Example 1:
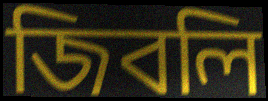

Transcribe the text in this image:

জিবলি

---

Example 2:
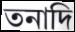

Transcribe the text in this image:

তনাদি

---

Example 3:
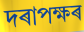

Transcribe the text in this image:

দৰাপক্ষৰ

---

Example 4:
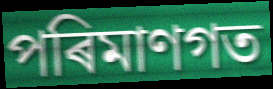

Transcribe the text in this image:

পৰিমাণগত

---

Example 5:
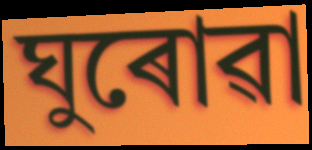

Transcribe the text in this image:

ঘুৰোৱা